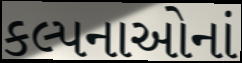
કલ્પનાઓનાં